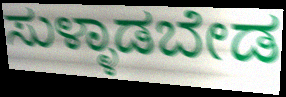
ಸುಳ್ಳಾಡಬೇಡ